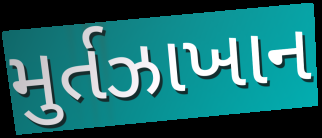
મુર્તઝાખાન